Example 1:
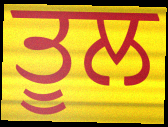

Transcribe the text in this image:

ਤੂਲ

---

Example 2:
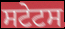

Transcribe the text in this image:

ਸਟੇਟਸ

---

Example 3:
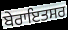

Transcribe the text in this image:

ਬੇਰਾਇਤਸਰ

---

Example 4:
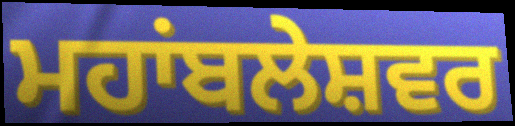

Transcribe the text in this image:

ਮਹਾਂਬਲੇਸ਼ਵਰ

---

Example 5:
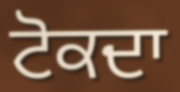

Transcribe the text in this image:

ਟੋਕਦਾ